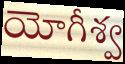
యోగీశ్వ